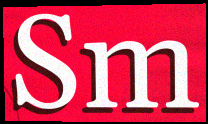
Sm